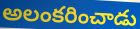
అలంకరించాడు